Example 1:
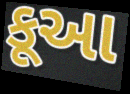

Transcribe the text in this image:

કૂઆ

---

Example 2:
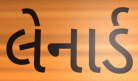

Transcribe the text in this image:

લેનાર્ડ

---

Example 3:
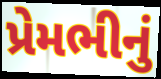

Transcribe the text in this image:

પ્રેમભીનું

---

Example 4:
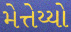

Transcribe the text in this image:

મેત્તેય્યો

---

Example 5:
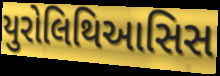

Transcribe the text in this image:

યુરોલિથિઆસિસ